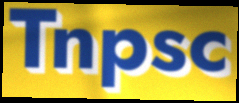
Tnpsc